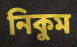
নিকুম